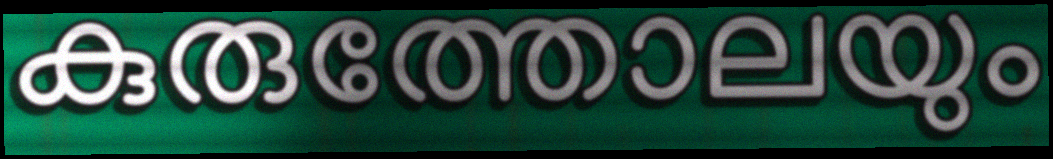
കുരുത്തോലയും